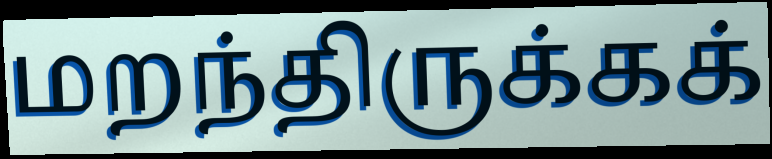
மறந்திருக்கக்